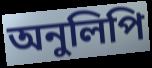
অনুলিপি